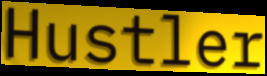
Hustler